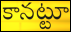
కానట్టూ